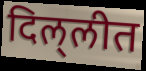
दिल्लीत